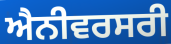
ਐਨੀਵਰਸਰੀ